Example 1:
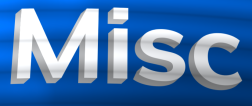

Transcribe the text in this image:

Misc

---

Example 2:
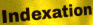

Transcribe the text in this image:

Indexation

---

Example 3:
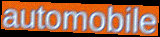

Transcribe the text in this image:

automobile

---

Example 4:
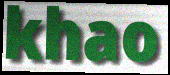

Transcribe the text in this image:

khao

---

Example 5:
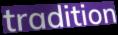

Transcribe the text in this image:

tradition